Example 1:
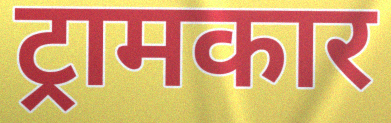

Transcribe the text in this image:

ट्रामकार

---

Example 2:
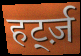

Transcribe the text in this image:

हर्ट्ज़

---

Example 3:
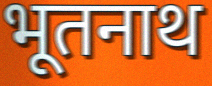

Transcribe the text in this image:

भूतनाथ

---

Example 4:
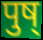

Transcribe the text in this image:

पुष्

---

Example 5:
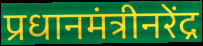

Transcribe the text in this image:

प्रधानमंत्रीनरेंद्र